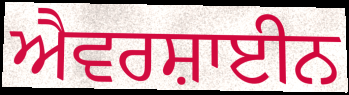
ਐਵਰਸ਼ਾਈਨ